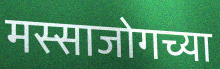
मस्साजोगच्या